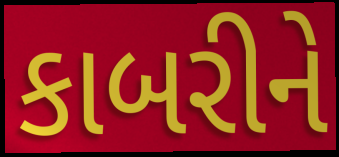
કાબરીને